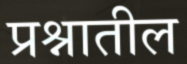
प्रश्नातील